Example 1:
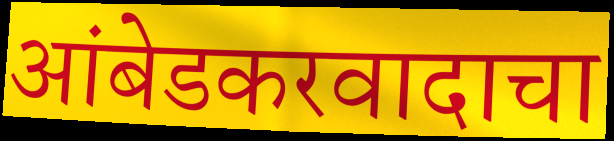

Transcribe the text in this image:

आंबेडकरवादाचा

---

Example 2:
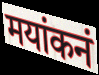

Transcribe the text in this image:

मयांकनं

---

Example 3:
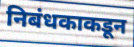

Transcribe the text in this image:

निबंधकाकडून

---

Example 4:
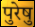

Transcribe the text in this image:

पुरेषु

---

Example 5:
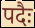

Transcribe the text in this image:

पदैः